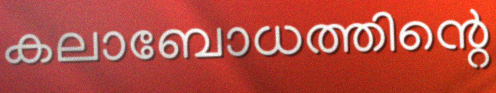
കലാബോധത്തിന്റെ